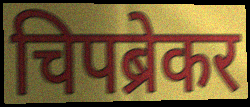
चिपब्रेकर